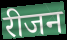
रीजन